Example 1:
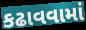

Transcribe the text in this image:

કઢાવવામાં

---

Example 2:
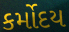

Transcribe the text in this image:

કર્મોદય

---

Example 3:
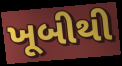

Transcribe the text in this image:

ખૂબીથી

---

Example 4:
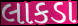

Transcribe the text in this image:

લાકડા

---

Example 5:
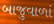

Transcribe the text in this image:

બાજુવાળાં